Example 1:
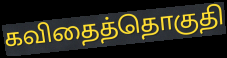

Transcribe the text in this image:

கவிதைத்தொகுதி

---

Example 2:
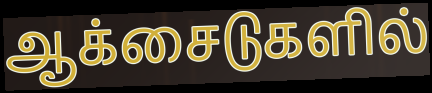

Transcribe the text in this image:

ஆக்சைடுகளில்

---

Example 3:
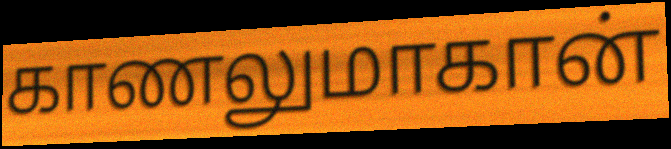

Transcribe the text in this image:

காணலுமாகான்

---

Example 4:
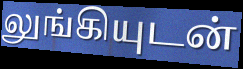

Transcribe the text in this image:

லுங்கியுடன்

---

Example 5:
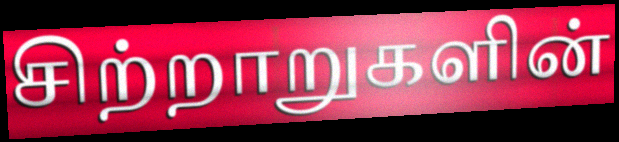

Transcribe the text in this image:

சிற்றாறுகளின்